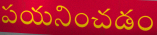
పయనించడం